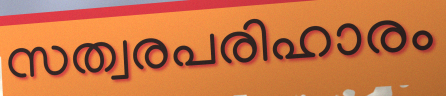
സത്വരപരിഹാരം